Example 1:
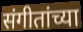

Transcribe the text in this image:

संगीतांच्या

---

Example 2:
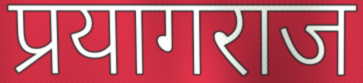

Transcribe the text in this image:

प्रयागराज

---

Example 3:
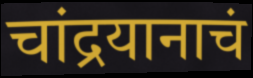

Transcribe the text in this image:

चांद्रयानाचं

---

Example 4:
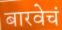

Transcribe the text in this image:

बारवेचं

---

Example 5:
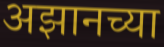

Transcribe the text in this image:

अझानच्या